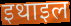
इथाइल